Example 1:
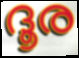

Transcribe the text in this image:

ദൂര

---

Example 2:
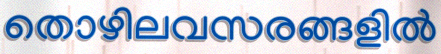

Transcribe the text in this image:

തൊഴിലവസരങ്ങളിൽ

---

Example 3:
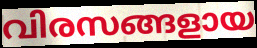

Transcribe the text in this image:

വിരസങ്ങളായ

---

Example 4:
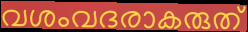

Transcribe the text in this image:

വശംവദരാകരുത്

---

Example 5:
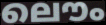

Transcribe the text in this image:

ലൌം